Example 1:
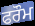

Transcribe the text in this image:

ਫਰੌਮ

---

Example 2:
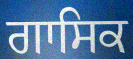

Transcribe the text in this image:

ਗਾਸਿਕ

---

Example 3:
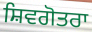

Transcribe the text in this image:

ਸ਼ਿਵਗੋਤਰਾ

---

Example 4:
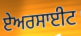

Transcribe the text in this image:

ਏਅਰਸਾਈਟ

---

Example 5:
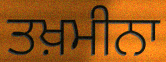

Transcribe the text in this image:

ਤਖ਼ਮੀਨਾ